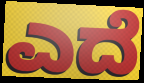
ಎದೆ